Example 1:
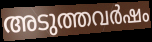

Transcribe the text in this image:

അടുത്തവർഷം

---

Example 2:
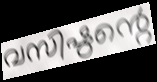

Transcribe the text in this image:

വസിഷ്ഠന്റെ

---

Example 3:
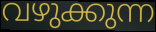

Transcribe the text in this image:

വഴുക്കുന്ന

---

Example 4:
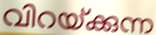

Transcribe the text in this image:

വിറയ്‌ക്കുന്ന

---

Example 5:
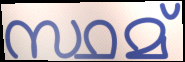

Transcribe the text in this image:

സ്ഥമ്